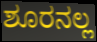
ಶೂರನಲ್ಲ